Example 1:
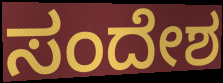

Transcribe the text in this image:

ಸಂದೇಶ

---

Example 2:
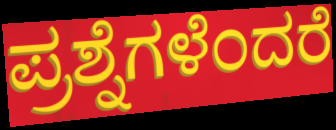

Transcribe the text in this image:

ಪ್ರಶ್ನೆಗಳೆಂದರೆ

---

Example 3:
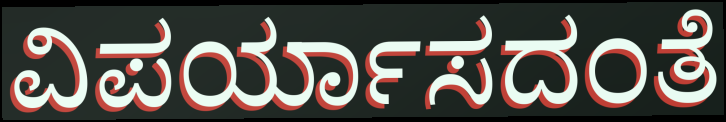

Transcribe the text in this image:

ವಿಪರ್ಯಾಸದಂತೆ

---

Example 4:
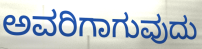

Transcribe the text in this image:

ಅವರಿಗಾಗುವುದು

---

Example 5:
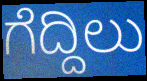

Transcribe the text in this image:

ಗೆದ್ದಿಲು